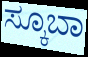
ಸ್ಕೂಬಾ